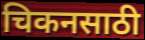
चिकनसाठी